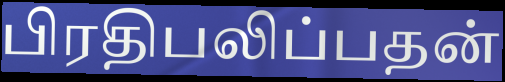
பிரதிபலிப்பதன்